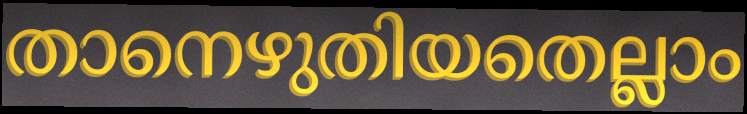
താനെഴുതിയതെല്ലാം